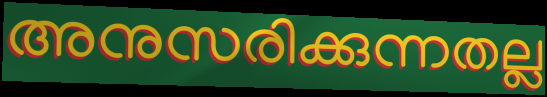
അനുസരിക്കുന്നതല്ല